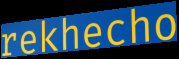
rekhecho